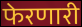
फेरणारी